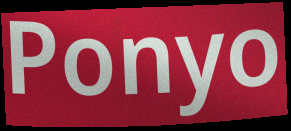
Ponyo